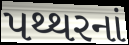
પથ્થરનાં